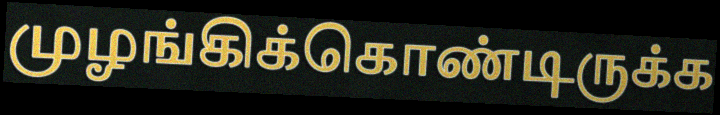
முழங்கிக்கொண்டிருக்க